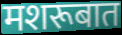
मशरूबात